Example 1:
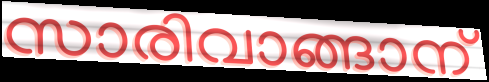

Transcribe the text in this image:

സാരിവാങ്ങാന്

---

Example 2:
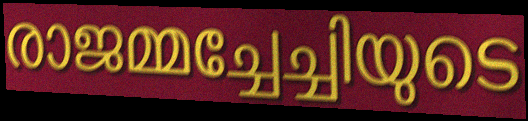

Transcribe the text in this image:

രാജമ്മച്ചേച്ചിയുടെ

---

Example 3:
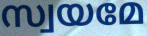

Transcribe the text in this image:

സ്വയമേ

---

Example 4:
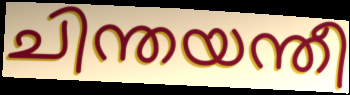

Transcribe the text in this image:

ചിന്തയന്തീ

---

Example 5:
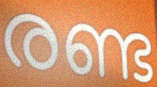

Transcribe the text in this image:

രണ്ട